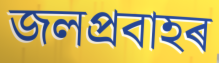
জলপ্ৰবাহৰ